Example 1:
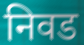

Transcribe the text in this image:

निवड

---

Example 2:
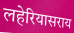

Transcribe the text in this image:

लहेरियासराय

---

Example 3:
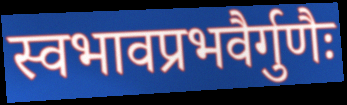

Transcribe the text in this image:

स्वभावप्रभवैर्गुणैः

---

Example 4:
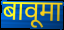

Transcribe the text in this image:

बावूमा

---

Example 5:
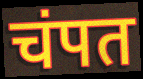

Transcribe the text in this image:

चंपत